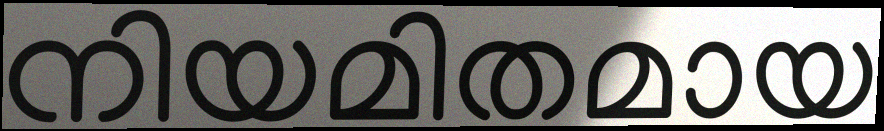
നിയമിതമായ